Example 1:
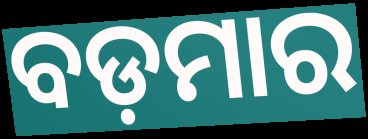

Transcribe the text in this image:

ବଡ଼ମାର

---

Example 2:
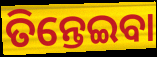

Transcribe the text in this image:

ତିନ୍ତେଇବା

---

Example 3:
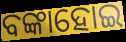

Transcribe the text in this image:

ବଙ୍କାହୋଇ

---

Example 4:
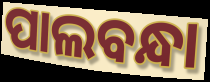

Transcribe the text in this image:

ପାଲବନ୍ଧା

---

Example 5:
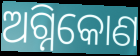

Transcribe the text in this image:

ଅଗ୍ନିକୋଣ